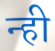
न्ही